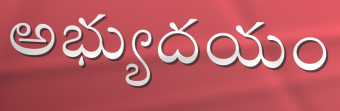
అభ్యుదయం